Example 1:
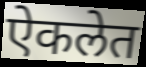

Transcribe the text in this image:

ऐकलेत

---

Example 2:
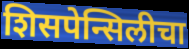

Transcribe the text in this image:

शिसपेन्सिलीचा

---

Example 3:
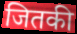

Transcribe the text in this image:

जितकी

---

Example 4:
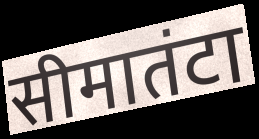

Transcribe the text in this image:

सीमातंटा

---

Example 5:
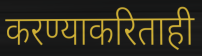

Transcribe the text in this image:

करण्याकरिताही